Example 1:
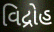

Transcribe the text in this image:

વિદ્રોહ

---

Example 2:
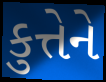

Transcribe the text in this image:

કુત્તેને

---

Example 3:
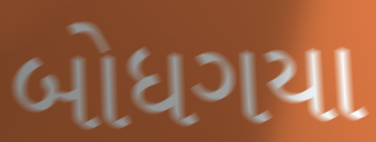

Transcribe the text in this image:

બોધગયા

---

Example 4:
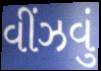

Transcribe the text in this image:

વીંઝવું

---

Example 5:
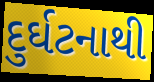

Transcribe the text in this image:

દુર્ઘટનાથી